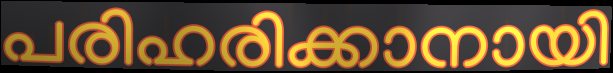
പരിഹരിക്കാനായി